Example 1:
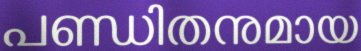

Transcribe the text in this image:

പണ്ഡിതനുമായ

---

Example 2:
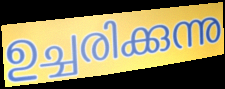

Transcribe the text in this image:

ഉച്ചരിക്കുന്നു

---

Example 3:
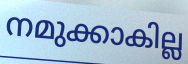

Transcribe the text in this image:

നമുക്കാകില്ല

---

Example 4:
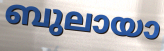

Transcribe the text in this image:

ബുലായാ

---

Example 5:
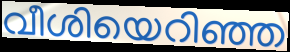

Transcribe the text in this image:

വീശിയെറിഞ്ഞ